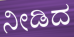
ನೀಡಿದ